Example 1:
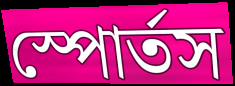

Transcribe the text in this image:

স্পোর্তস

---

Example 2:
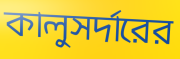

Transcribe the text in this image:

কালুসর্দারের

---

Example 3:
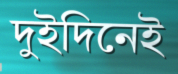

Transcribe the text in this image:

দুইদিনেই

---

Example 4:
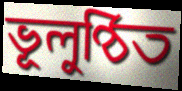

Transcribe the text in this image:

ভূলুণ্ঠিত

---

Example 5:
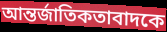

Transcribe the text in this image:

আন্তর্জাতিকতাবাদকে